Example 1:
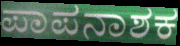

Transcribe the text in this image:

ಪಾಪನಾಶಕ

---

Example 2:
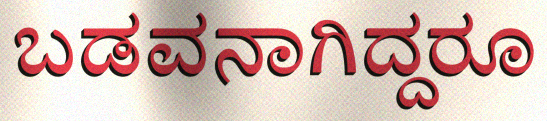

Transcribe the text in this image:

ಬಡವನಾಗಿದ್ದರೂ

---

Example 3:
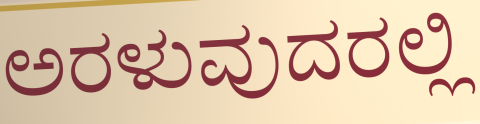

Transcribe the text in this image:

ಅರಳುವುದರಲ್ಲಿ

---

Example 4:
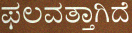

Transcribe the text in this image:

ಫಲವತ್ತಾಗಿದೆ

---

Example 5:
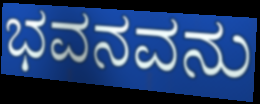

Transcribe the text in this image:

ಭವನವನು